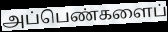
அப்பெண்களைப்